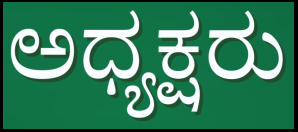
ಅಧ್ಯಕ್ಷರು